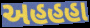
અહહહા